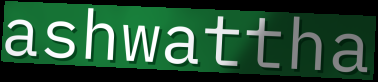
ashwattha